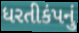
ધરતીકંપનું